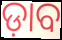
ଡ଼ାବ